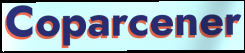
Coparcener